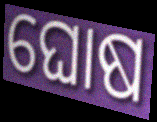
ଘୋଷ